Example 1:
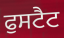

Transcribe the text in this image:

ਫੁਸਟੈਟ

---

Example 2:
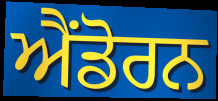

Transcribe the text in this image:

ਐਂਡੋਰਨ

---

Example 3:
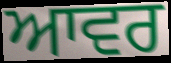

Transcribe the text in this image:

ਆਵਰ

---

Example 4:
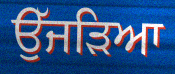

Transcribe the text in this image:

ਉੱਜੜਿਆ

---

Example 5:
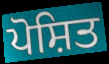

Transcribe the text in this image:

ਪੋਸ਼ਿਤ